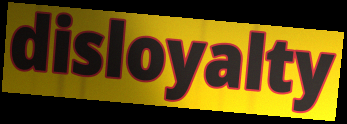
disloyalty